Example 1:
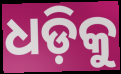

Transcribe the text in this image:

ଧଡ଼ିକୁ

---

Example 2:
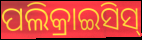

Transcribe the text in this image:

ପଲିକ୍ରାଇସିସ୍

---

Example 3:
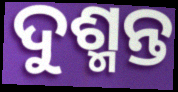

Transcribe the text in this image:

ଦୁଶ୍ମନ୍ତ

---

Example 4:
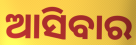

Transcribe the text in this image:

ଆସିବାର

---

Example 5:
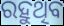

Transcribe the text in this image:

ରହୁଥିବ